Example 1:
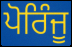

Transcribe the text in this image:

ਪੋਰਿੰਜੂ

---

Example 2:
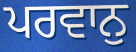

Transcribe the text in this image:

ਪਰਵਾਨੁ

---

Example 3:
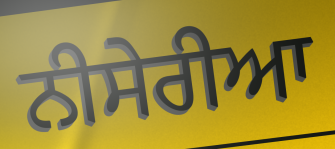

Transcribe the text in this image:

ਨੀਸੇਰੀਆ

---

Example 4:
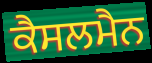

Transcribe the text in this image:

ਕੈਸਲਮੈਨ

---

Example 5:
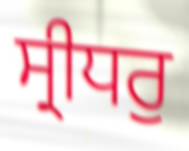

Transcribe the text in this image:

ਸ੍ਰੀਧਰੁ